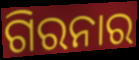
ଗିରନାର